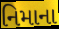
નિમાના